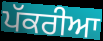
ਪੱਕਰੀਆ